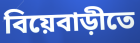
বিয়েবাড়ীতে